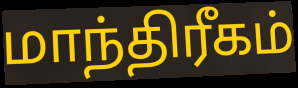
மாந்திரீகம்